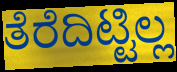
ತೆರೆದಿಟ್ಟಿಲ್ಲ